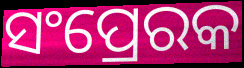
ସଂପ୍ରେରକ